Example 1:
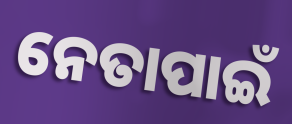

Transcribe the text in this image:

ନେତାପାଇଁ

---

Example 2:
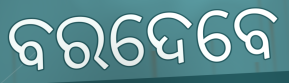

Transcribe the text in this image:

ବରଦେବେ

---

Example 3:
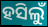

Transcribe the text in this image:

ହସିଲୁଁ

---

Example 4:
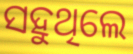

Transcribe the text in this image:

ସହୁଥିଲେ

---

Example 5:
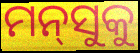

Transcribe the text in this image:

ମନ୍‌ସୁକୁ